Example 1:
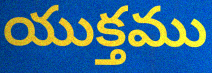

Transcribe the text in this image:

యుక్తము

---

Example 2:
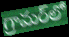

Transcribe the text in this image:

గ్రామర్‌లో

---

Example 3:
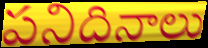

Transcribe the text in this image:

పనిదినాలు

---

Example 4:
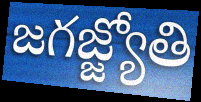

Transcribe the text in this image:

జగజ్జ్యోతి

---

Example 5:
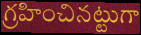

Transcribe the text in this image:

గ్రహించినట్టుగా